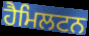
ਹੈਮਿਲਟਨ